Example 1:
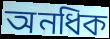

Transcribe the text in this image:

অনধিক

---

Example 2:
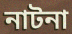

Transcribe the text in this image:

নাটনা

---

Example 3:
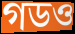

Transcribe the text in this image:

গডও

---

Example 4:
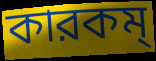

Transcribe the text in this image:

কারকম্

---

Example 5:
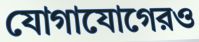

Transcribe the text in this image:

যোগাযোগেরও